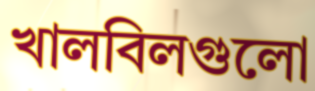
খালবিলগুলো